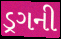
ડ્રગની